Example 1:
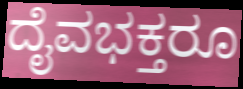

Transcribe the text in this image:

ದೈವಭಕ್ತರೂ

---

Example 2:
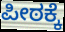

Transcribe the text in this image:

ಪೀಠಕ್ಕೆ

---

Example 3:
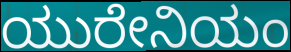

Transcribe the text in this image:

ಯುರೇನಿಯಂ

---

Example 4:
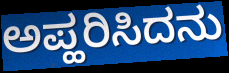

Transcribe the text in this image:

ಅಪ್ಹರಿಸಿದನು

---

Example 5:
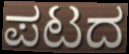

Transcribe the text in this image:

ಪಟದ